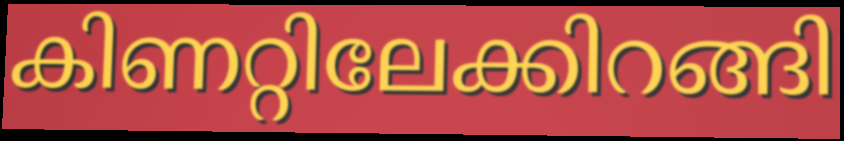
കിണറ്റിലേക്കിറങ്ങി